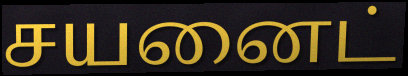
சயனைட்